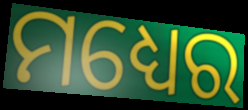
ମଧ୍ୟେର